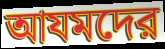
আযমদের